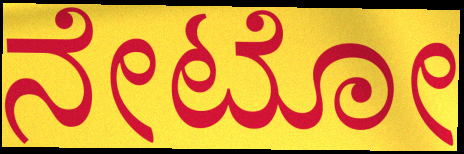
ನೇಟೋ